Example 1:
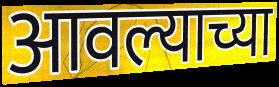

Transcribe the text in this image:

आवल्याच्या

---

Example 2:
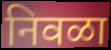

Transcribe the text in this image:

निवळा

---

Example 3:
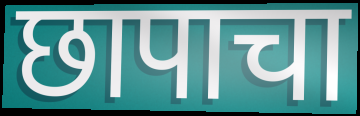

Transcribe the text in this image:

छापाचा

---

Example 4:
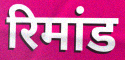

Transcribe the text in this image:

रिमांड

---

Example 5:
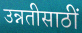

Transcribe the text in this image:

उन्नतीसाठीं